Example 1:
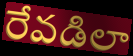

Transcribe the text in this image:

రేవడిలా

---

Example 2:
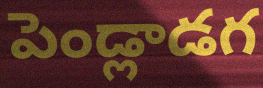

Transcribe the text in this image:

పెండ్లాడగ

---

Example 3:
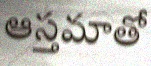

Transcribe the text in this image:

ఆస్తమాతో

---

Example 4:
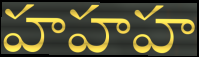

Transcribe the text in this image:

హహహ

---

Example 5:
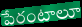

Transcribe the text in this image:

పేరంటాలూ